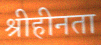
श्रीहीनता